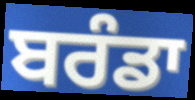
ਬਰੰਡਾ